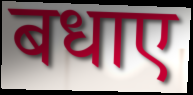
बधाए